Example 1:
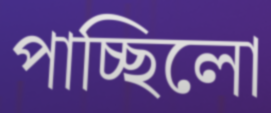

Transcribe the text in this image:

পাচ্ছিলো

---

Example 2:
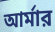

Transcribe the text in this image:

আর্মার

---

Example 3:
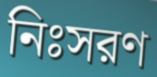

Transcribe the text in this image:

নিঃসরণ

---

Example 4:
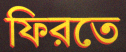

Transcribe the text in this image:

ফিরতে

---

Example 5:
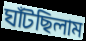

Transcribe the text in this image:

ঘাঁটছিলাম